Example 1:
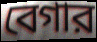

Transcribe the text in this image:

বেগার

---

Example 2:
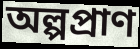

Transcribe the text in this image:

অল্পপ্রাণ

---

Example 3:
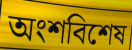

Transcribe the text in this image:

অংশবিশেষ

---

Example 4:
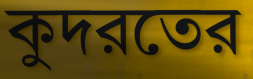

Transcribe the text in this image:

কুদরতের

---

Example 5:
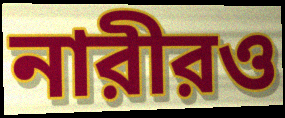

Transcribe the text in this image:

নারীরও